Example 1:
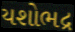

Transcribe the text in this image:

યશોભદ્ર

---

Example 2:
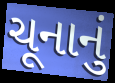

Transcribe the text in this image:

ચૂનાનું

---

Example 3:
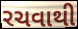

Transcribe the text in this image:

રચવાથી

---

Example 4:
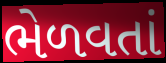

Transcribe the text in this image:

ભેળવતાં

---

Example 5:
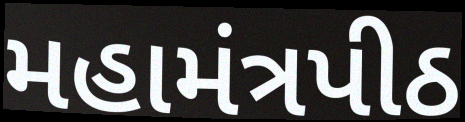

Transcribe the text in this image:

મહામંત્રપીઠ